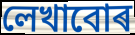
লেখাবোৰ